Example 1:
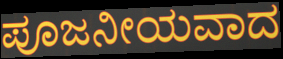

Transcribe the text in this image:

ಪೂಜನೀಯವಾದ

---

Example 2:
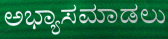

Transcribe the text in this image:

ಅಭ್ಯಾಸಮಾಡಲು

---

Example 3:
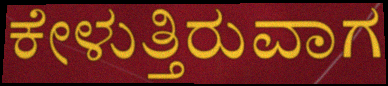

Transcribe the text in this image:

ಕೇಳುತ್ತಿರುವಾಗ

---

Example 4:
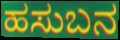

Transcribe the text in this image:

ಹಸುಬನ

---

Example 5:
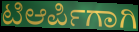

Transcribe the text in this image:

ಟಿಆರ್ಪಿಗಾಗಿ